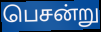
பெசன்று